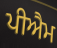
ਪੀਐਮ